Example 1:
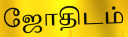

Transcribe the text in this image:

ஜோதிடம்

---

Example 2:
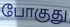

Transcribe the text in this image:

போகுது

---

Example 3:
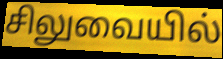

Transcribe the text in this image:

சிலுவையில்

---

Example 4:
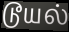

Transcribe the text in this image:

டூயல்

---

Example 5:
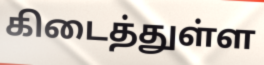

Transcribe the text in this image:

கிடைத்துள்ள